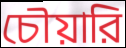
চৌয়ারি